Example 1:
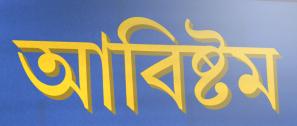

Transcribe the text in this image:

আবিষ্টম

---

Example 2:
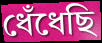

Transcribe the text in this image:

ধেঁধেছি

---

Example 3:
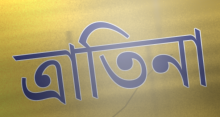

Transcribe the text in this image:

ত্রাতিনা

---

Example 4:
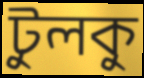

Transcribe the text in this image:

টুলকু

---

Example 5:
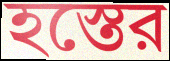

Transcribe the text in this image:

হস্তের